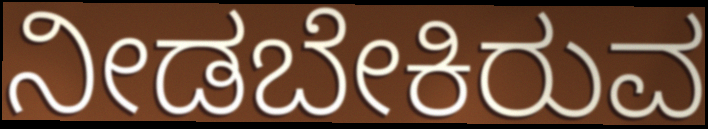
ನೀಡಬೇಕಿರುವ